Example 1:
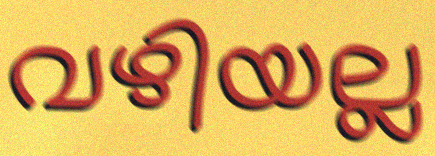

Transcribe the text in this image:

വഴിയല്ല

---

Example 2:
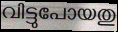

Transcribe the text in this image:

വിട്ടുപോയതു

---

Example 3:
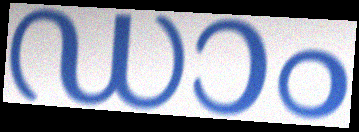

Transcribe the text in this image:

ഡാം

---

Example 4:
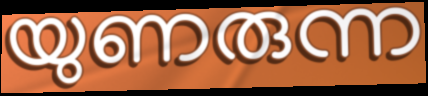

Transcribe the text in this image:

യുണരുന്ന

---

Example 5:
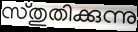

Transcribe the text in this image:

സ്തുതിക്കുന്നു